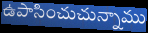
ఉపాసించుచున్నాము